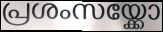
പ്രശംസയ്ക്കോ